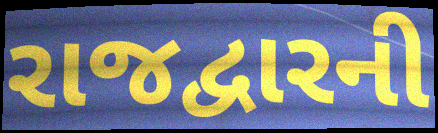
રાજદ્વારની